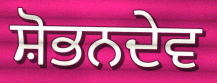
ਸ਼ੋਭਨਦੇਵ